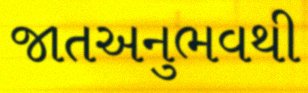
જાતઅનુભવથી